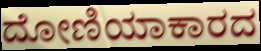
ದೋಣಿಯಾಕಾರದ